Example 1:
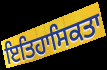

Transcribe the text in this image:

ਇਤਿਹਾਸਿਕਤਾ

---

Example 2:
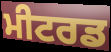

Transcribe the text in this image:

ਮੀਟਰਡ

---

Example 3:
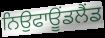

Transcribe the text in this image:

ਨਿਉਫਾਊਂਡਲੈਂਡ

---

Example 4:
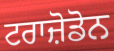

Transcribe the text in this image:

ਟਰਾਜ਼ੋਡੋਨ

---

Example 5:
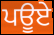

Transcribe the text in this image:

ਪਊਏ